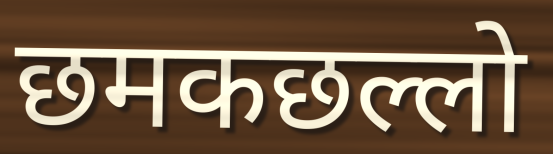
छमकछल्लो